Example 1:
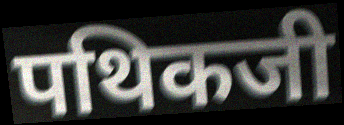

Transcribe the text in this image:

पथिकजी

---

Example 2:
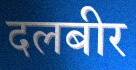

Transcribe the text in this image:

दलबीर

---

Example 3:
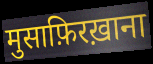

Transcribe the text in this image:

मुसाफ़िरख़ाना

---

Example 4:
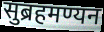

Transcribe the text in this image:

सुब्रहमण्यन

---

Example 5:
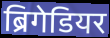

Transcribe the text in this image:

ब्रिगेडियर